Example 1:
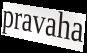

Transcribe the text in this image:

pravaha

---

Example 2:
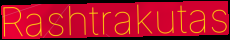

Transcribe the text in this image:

Rashtrakutas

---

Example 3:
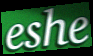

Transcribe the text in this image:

eshe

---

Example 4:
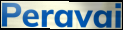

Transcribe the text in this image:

Peravai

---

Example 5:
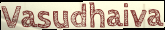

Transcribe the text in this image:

Vasudhaiva